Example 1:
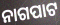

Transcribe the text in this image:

ନାଗପାଟ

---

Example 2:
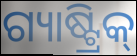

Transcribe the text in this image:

ଗ୍ୟାଷ୍ଟ୍ରିକ୍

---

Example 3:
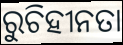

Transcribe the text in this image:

ରୁଚିହୀନତା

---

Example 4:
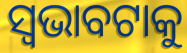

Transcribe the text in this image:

ସ୍ଵଭାବଟାକୁ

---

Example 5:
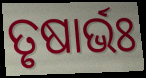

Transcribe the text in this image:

ତୃଷାର୍ଭଃ